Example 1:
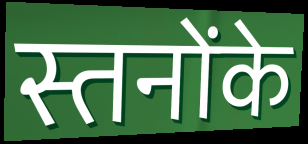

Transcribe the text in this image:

स्तनोंके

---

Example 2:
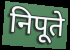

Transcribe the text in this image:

निपूते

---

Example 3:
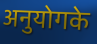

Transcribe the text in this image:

अनुयोगके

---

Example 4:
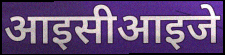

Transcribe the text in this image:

आइसीआइजे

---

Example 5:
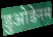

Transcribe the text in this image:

डुओडेनम